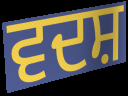
ਵਦਸ਼